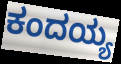
ಕಂದಯ್ಯ